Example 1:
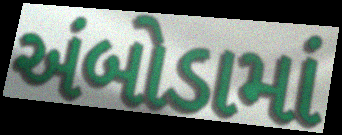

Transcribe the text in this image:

અંબોડામાં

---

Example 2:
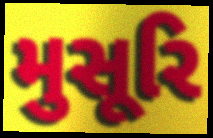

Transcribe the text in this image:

મુસૂરિ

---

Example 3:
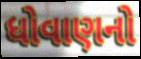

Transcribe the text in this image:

ધોવાણનો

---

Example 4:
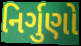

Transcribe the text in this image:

નિર્ગુણો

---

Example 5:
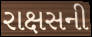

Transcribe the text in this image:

રાક્ષસની